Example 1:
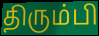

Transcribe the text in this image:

திரும்பி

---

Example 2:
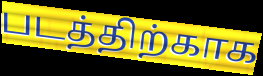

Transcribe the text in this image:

படத்திற்காக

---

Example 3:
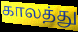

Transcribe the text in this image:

காலத்து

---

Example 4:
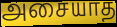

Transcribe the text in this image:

அசையாத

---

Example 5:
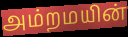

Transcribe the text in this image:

அம்றமயின்